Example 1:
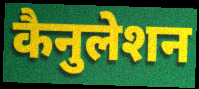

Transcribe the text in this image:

कैनुलेशन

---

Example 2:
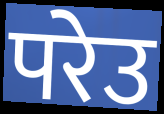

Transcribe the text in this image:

परेउ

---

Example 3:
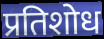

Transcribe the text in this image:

प्रतिशोध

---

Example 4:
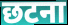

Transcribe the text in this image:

छटना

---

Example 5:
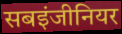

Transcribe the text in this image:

सबइंजीनियर